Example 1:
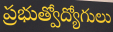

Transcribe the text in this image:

ప్రభుత్వోద్యోగులు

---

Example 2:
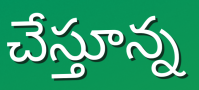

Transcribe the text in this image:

చేస్తూన్న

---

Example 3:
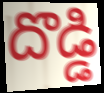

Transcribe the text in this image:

దొడ్డి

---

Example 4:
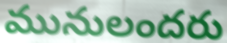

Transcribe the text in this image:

మునులందరు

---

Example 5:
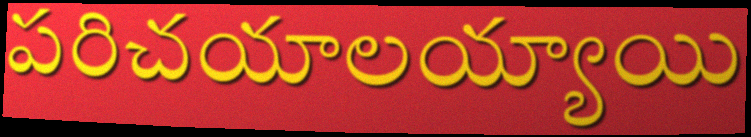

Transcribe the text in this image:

పరిచయాలయ్యాయి